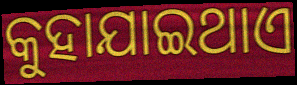
କୁହାଯାଇଥାଏ